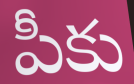
పీకు